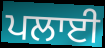
ਪਲਾਈ